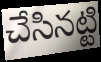
చేసినట్టి